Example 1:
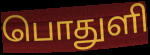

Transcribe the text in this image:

பொதுளி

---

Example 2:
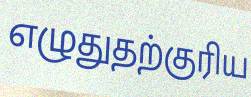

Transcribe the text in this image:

எழுதுதற்குரிய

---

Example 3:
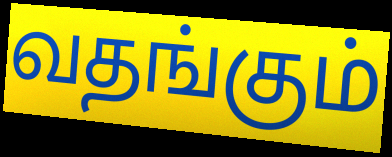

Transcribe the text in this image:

வதங்கும்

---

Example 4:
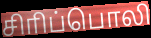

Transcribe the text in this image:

சிரிப்பொலி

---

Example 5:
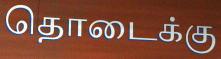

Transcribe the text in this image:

தொடைக்கு